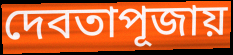
দেবতাপূজায়